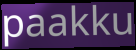
paakku